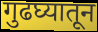
गुढघ्यातून